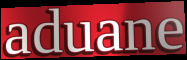
aduane